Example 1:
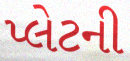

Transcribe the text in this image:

પ્લેટની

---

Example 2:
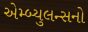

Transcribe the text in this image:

એમ્બ્યુલન્સનો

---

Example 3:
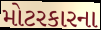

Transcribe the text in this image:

મોટરકારના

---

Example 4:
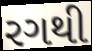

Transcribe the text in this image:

રગથી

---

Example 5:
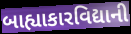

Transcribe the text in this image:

બાહ્યાકારવિદ્યાની